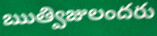
ఋత్విజులందరు